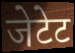
जेटेट